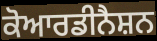
ਕੋਆਰਡੀਨੈਸ਼ਨ